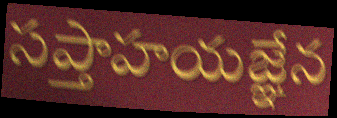
సప్తాహయజ్ఞేన